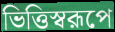
ভিত্তিস্বরূপে